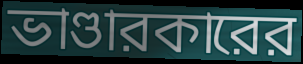
ভাণ্ডারকারের